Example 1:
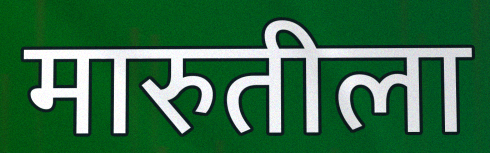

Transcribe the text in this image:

मारुतीला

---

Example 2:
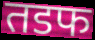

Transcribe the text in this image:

तडफ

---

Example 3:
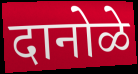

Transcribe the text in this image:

दानोळे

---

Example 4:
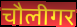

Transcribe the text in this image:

चौलीगर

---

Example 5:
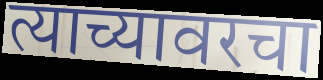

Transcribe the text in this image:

त्याच्यावरचा